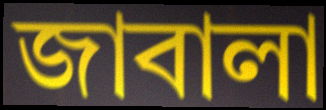
জাবালা